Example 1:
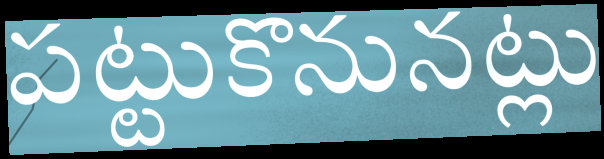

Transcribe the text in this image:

పట్టుకొనునట్లు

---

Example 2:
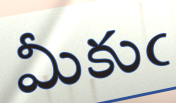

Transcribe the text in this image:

మీకుఁ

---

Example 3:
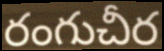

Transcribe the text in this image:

రంగుచీర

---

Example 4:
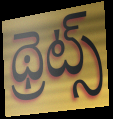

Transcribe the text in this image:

థ్రెట్స్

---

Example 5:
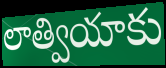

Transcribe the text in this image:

లాత్వియాకు